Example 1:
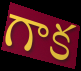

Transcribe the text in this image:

గాక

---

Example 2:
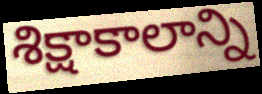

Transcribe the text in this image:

శిక్షాకాలాన్ని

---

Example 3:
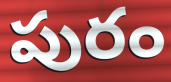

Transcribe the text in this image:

పురం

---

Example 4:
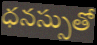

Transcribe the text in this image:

ధనస్సుతో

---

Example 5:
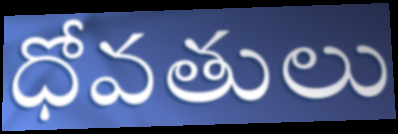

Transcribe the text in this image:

ధోవతులు